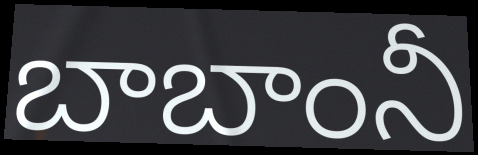
బాబాంనీ